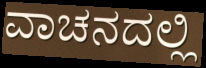
ವಾಚನದಲ್ಲಿ